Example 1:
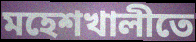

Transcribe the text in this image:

মহেশখালীতে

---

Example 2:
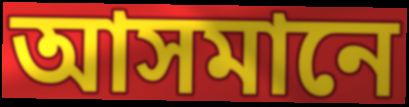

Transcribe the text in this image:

আসমানে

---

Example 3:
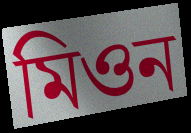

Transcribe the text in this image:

মিওন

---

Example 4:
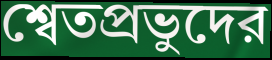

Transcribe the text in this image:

শ্বেতপ্রভুদের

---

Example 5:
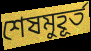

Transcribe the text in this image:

শেষমুহূর্ত